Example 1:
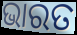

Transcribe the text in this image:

ଭାରତ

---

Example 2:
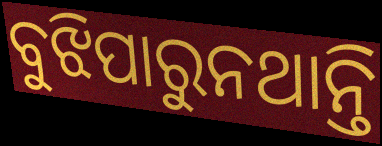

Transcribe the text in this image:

ବୁଝିପାରୁନଥାନ୍ତି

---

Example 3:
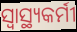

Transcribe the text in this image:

ସ୍ୱାସ୍ଥ୍ୟକର୍ମୀ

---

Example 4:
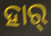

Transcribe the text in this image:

ହାର୍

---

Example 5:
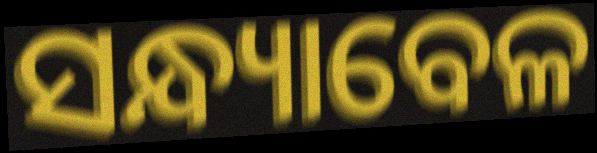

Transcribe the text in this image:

ସନ୍ଧ୍ୟାବେଳ